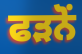
ਫੜਨੋਂ